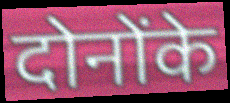
दोनोंके